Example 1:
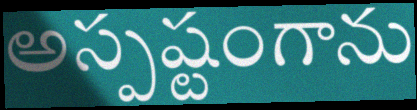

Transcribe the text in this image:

అస్పష్టంగాను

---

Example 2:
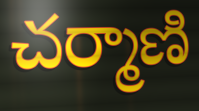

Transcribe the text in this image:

చర్మాణి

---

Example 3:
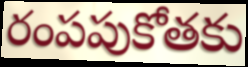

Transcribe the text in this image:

రంపపుకోతకు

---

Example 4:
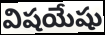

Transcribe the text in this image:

విషయేషు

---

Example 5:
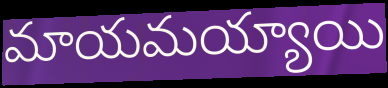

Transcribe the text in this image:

మాయమయ్యాయి